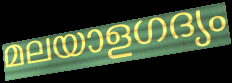
മലയാളഗദ്യം